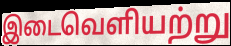
இடைவெளியற்று